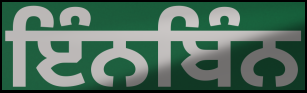
ਇੰਨਬਿੰਨ